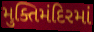
મુક્તિમંદિરમાં